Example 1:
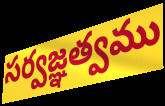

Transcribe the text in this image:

సర్వజ్ఞత్వము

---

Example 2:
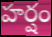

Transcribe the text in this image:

హర్షం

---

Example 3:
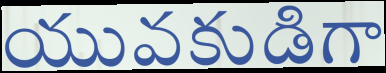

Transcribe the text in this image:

యువకుడిగా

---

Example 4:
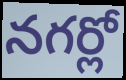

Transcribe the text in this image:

నగర్లో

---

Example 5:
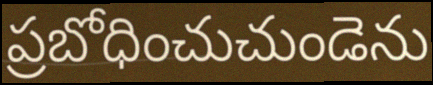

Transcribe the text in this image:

ప్రబోధించుచుండెను